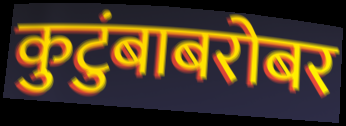
कुटुंबाबरोबर